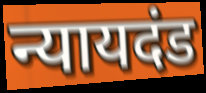
न्यायदंड